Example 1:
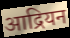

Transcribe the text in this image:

आद्रियन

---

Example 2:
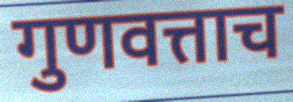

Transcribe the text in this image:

गुणवत्ताच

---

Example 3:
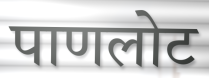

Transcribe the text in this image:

पाणलोट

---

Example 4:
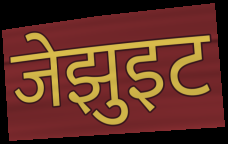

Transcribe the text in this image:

जेझुइट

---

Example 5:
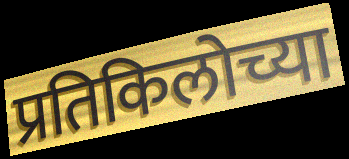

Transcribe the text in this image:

प्रतिकिलोच्या